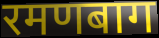
रमणबाग